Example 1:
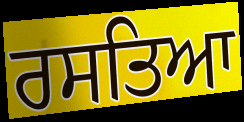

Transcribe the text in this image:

ਰਸਤਿਆ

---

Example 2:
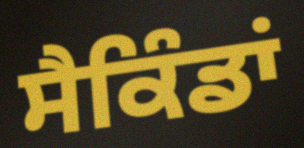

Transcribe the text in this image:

ਸੈਕਿੰਡਾਂ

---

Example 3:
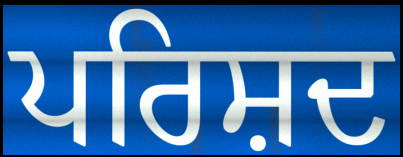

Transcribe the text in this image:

ਪਰਿਸ਼ਦ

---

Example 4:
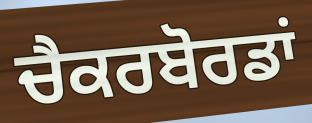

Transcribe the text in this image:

ਚੈਕਰਬੋਰਡਾਂ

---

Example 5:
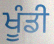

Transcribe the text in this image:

ਖੂੰਡੀ